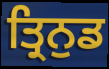
ਤ੍ਰਿਨੁਡ